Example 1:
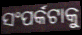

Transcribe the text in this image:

ସଂପର୍କଟାକୁ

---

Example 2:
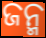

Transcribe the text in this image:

ଜନ୍ମ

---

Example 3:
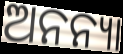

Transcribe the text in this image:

ଅନନ୍ୟା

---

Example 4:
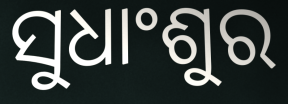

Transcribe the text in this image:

ସୁଧାଂଶୁର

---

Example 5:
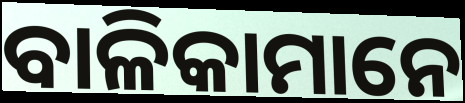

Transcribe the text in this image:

ବାଳିକାମାନେ